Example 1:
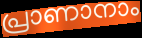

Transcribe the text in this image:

പ്രാണാനാം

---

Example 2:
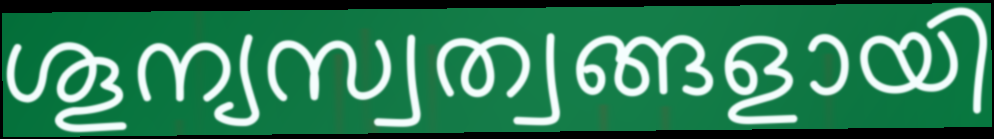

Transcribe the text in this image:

ശൂന്യസ്വത്വങ്ങളായി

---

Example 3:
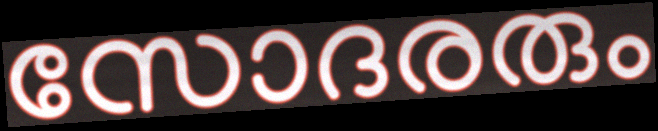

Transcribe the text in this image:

സോദരരും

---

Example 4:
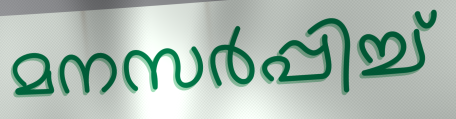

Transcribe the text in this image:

മനസർപ്പിച്ച്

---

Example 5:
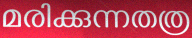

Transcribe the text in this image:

മരിക്കുന്നതത്ര